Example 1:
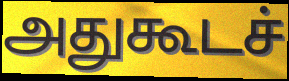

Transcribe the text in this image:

அதுகூடச்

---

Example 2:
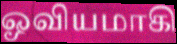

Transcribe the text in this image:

ஓவியமாகி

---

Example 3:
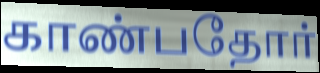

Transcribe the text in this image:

காண்பதோர்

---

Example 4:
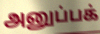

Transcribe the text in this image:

அனுப்பக்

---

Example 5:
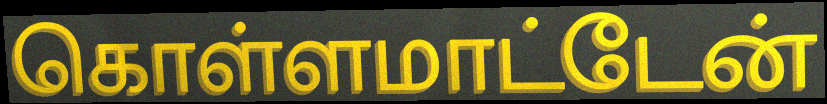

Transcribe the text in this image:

கொள்ளமாட்டேன்